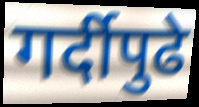
गर्दीपुढे